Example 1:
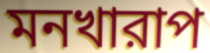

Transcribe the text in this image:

মনখারাপ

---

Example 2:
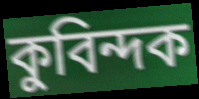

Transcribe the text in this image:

কুবিন্দক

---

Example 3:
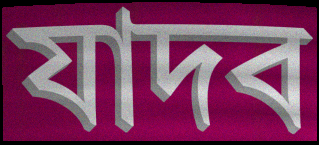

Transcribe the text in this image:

যাদব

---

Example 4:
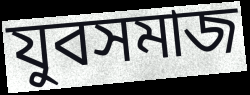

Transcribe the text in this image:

যুবসমাজ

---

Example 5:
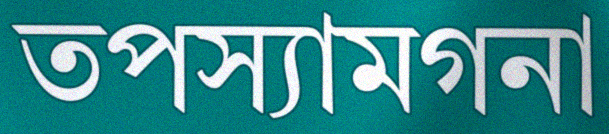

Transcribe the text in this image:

তপস্যামগনা